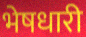
भेषधारी